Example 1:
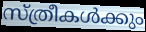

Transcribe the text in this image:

സ്ത്രീകൾക്കും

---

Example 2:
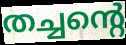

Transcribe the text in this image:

തച്ചന്റെ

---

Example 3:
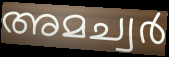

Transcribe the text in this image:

അമച്വർ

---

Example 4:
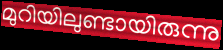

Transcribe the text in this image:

മുറിയിലുണ്ടായിരുന്നു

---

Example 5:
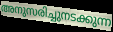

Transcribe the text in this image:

അനുസരിച്ചുനടക്കുന്ന